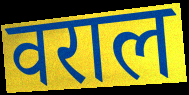
वराल